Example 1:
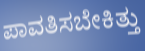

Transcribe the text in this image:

ಪಾವತಿಸಬೇಕಿತ್ತು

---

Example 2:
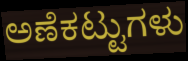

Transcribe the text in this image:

ಅಣೆಕಟ್ಟುಗಳು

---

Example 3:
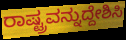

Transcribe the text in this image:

ರಾಷ್ಟ್ರವನ್ನುದ್ದೇಶಿಸಿ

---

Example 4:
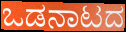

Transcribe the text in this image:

ಒಡನಾಟದ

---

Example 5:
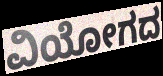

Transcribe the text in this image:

ವಿಯೋಗದ